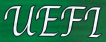
UEFI